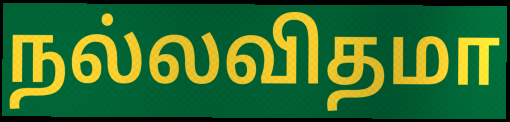
நல்லவிதமா